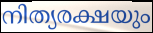
നിത്യരക്ഷയും